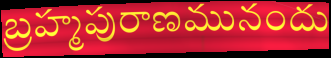
బ్రహ్మపురాణమునందు